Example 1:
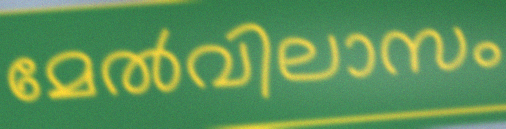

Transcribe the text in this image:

മേൽവിലാസം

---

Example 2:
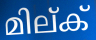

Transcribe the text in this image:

മില്ക്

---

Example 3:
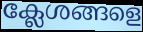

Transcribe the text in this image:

ക്ലേശങ്ങളെ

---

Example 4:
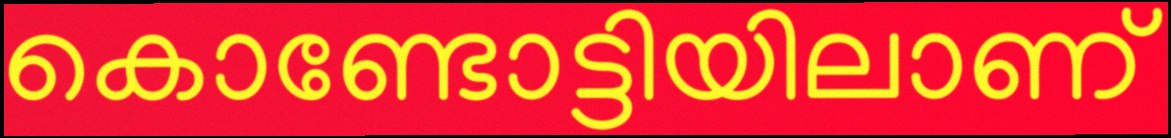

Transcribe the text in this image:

കൊണ്ടോട്ടിയിലാണ്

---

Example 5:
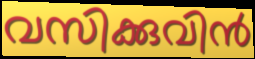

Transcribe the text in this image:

വസിക്കുവിൻ